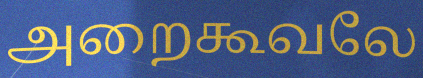
அறைகூவலே